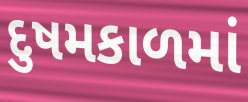
દુષમકાળમાં